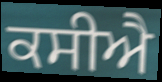
ਕਸੀਐ